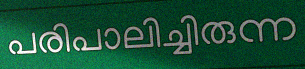
പരിപാലിച്ചിരുന്ന